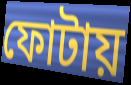
ফোটায়